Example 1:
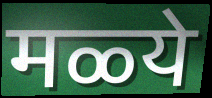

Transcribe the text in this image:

मळ्ये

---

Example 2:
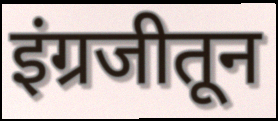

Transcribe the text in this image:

इंग्रजीतून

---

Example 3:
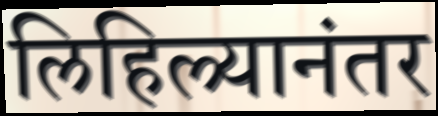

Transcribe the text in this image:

लिहिल्यानंतर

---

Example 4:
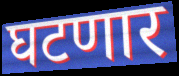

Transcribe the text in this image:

घटणार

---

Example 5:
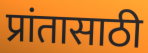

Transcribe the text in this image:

प्रांतासाठी